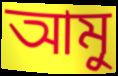
আমু